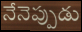
నేనెప్పుడు